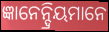
ଜ୍ଞାନେନ୍ଦ୍ରିୟମାନେ